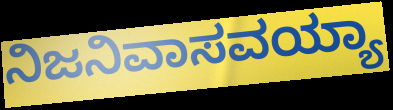
ನಿಜನಿವಾಸವಯ್ಯಾ